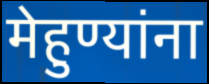
मेहुण्यांना